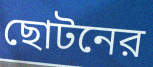
ছোটনের